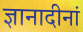
ज्ञानादीनां